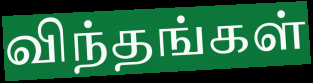
விந்தங்கள்